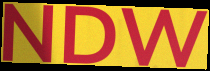
NDW